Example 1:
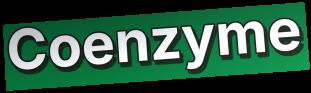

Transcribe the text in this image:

Coenzyme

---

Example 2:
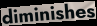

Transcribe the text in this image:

diminishes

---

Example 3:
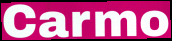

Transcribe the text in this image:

Carmo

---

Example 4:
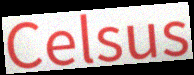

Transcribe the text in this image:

Celsus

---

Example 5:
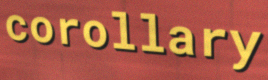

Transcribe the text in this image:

corollary